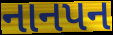
નાનપન